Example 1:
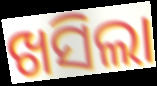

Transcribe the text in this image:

ଖସିଲା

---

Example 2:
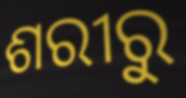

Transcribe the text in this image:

ଶରୀରୁ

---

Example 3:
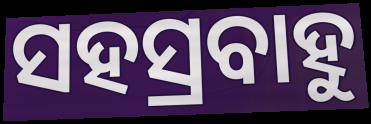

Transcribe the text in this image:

ସହସ୍ରବାହୁ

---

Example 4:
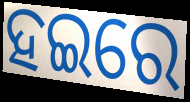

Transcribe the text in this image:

ହଇରେ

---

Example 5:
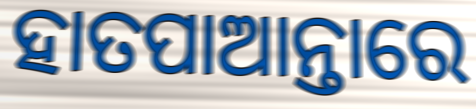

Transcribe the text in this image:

ହାତପାଆନ୍ତାରେ